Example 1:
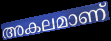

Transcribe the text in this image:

അകലമാണ്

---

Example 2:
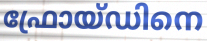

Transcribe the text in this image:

ഫ്രോയ്ഡിനെ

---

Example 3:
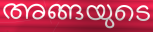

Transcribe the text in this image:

അങ്ങയുടെ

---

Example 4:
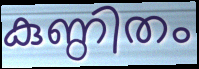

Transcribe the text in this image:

കുണ്ഠിതം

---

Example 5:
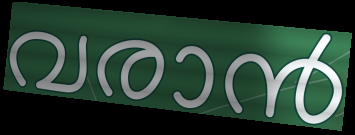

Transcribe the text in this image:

വരാൻ